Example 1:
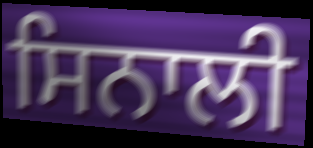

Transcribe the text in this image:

ਸਿਨਾਲੀ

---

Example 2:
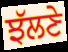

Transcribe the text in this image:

ਝੱਲਣੇ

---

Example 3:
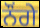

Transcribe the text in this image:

ਨੌਂਗੇ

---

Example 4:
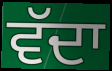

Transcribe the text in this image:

ਵੱਦਾ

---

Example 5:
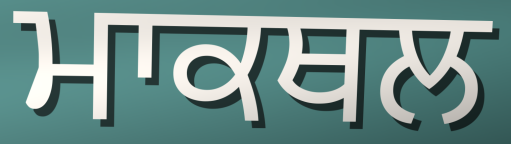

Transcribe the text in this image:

ਮਾਕਥਲ